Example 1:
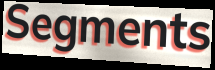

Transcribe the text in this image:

Segments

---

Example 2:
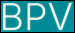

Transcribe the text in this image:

BPV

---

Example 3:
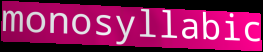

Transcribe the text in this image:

monosyllabic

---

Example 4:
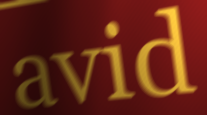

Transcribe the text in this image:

avid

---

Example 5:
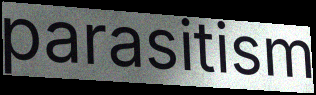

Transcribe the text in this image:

parasitism